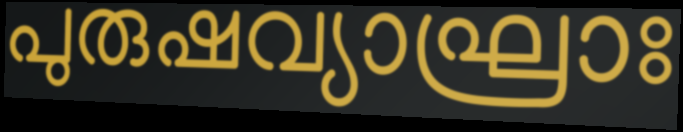
പുരുഷവ്യാഘ്രാഃ